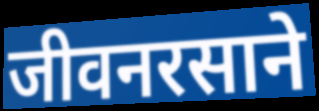
जीवनरसाने